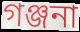
গঞ্জনা